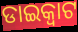
ଡାଇକ୍ଵାଟ